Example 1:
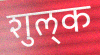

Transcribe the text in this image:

शुल्क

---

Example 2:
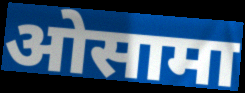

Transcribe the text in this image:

ओसामा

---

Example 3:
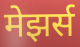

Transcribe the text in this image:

मेझर्स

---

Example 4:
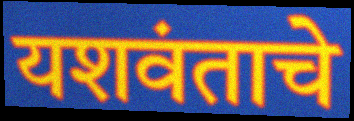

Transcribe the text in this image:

यशवंताचे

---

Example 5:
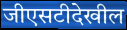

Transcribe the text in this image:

जीएसटीदेखील